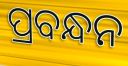
ପ୍ରବନ୍ଧନ